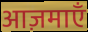
आज़माएँ